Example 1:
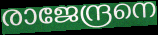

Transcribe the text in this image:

രാജേന്ദ്രനെ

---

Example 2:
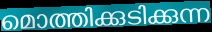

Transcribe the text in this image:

മൊത്തിക്കുടിക്കുന്ന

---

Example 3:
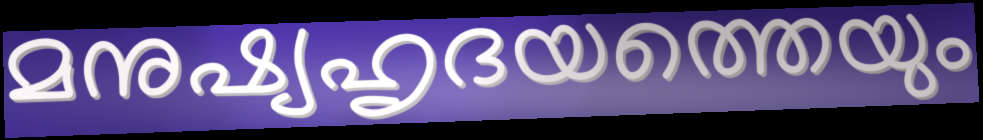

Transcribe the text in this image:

മനുഷ്യഹൃദയത്തെയും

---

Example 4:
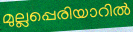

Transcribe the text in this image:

മുല്ലപ്പെരിയാറിൽ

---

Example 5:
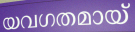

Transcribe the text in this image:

യവഗതമായ്